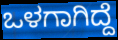
ಒಳಗಾಗಿದ್ದೆ